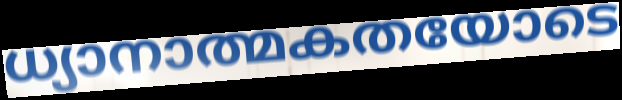
ധ്യാനാത്മകതയോടെ